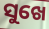
ସୁଖେ